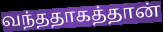
வந்ததாகத்தான்